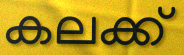
കലക്ക്